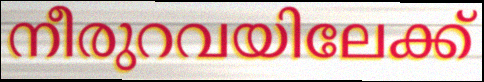
നീരുറവയിലേക്ക്